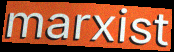
marxist